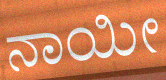
ನಾಯೀ